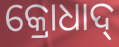
କ୍ରୋଧାଦ୍